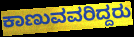
ಕಾಣುವವರಿದ್ದರು